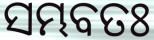
ସମ୍ଭବତଃ